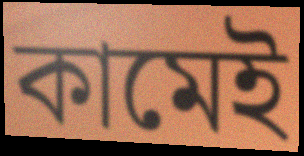
কামেই